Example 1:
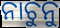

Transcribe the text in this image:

ନାଚୁନୁ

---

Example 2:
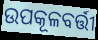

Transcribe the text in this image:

ଉପକୂଳବର୍ତ୍ତୀ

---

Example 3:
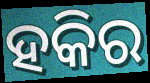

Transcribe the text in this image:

ହକିର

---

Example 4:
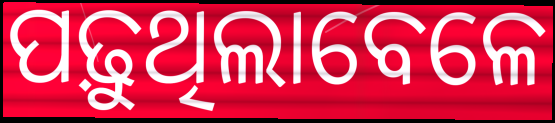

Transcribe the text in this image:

ପଢ଼ୁଥିଲାବେଳେ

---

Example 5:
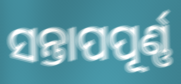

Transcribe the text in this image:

ସନ୍ତାପପୂର୍ଣ୍ଣ